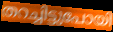
തറച്ചിട്ടുപോയി